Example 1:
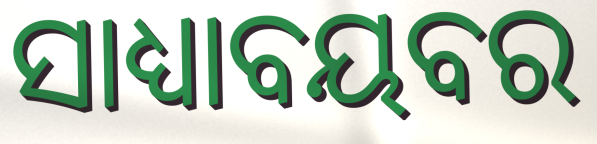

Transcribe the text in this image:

ସାଧ୍ୟାବୟବର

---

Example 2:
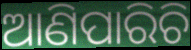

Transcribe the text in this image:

ଆଣିପାରିଚି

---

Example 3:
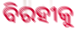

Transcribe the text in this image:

ବିରହୀକୁ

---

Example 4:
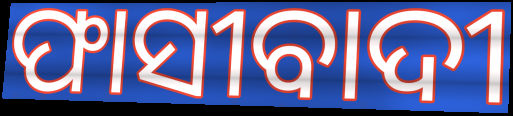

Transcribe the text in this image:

ଫାସୀବାଦୀ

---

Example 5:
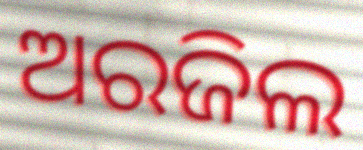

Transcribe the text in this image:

ଅରଜିଲ